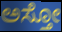
ಅಸ್ತೋ